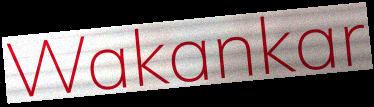
Wakankar